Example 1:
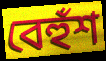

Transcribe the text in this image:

বেহুঁশ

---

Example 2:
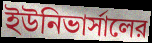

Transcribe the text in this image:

ইউনিভার্সালের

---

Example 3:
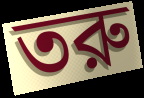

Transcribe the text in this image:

তরু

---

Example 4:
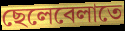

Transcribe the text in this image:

ছেলেবেলাতে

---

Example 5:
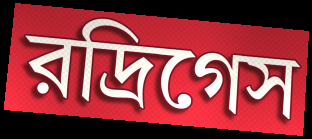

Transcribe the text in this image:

রদ্রিগেস